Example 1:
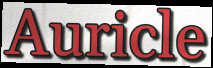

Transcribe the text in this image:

Auricle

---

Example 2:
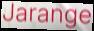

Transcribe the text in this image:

Jarange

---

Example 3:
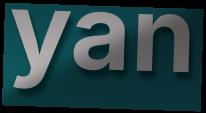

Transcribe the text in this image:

yan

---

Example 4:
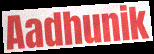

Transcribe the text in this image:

Aadhunik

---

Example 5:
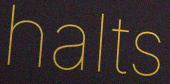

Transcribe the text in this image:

halts